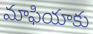
మాఫియాకు